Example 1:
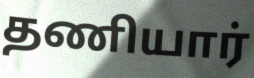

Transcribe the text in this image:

தணியார்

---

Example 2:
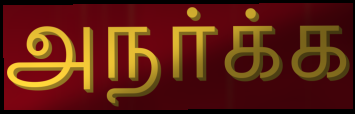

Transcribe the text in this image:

அநர்க்க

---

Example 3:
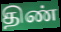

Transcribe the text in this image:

திண்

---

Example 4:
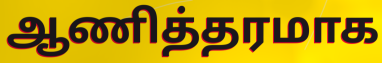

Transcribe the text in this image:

ஆணித்தரமாக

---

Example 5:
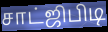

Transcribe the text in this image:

சாட்ஜிபிடி